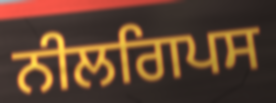
ਨੀਲਗਿਪਸ